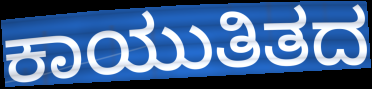
ಕಾಯುತಿತದ